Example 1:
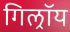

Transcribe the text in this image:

गिल्रॉय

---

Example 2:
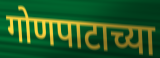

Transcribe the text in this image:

गोणपाटाच्या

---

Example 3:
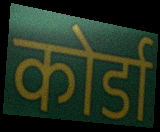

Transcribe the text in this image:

कोर्डा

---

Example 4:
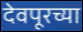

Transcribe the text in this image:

देवपूरच्या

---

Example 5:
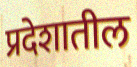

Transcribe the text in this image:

प्रदेशातील